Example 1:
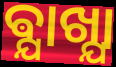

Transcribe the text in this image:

ଵ୍ଯାଖ୍ଯା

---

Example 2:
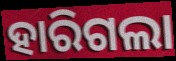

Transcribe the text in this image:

ହାରିଗଲା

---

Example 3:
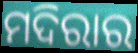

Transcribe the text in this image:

ମଦିରାର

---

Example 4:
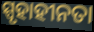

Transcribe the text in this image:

ସ୍ପୃହାହୀନତା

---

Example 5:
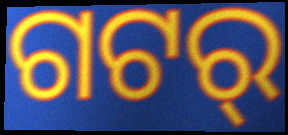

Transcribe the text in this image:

ଗଟର୍